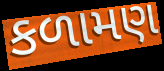
કળામણ